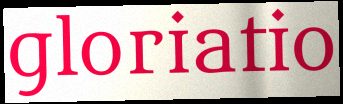
gloriatio